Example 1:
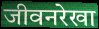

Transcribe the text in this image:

जीवनरेखा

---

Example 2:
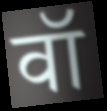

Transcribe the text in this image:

वॉ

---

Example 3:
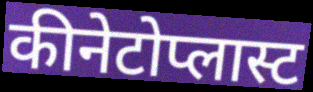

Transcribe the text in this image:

कीनेटोप्लास्ट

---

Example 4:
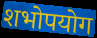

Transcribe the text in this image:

शभोपयोग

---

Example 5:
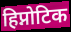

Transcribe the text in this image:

हिप्नोटिक